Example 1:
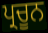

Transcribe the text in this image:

ਪ੍ਰਚੂਨ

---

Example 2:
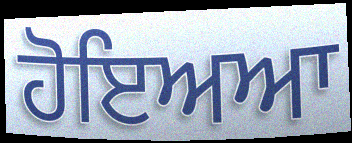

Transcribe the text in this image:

ਹੋਇਅਆ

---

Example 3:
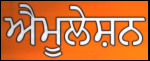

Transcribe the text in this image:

ਐਮੂਲੇਸ਼ਨ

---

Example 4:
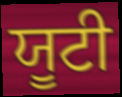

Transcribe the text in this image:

ਯੂਟੀ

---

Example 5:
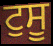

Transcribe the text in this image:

ਟੁਸੂ